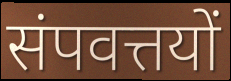
संपवत्तयों